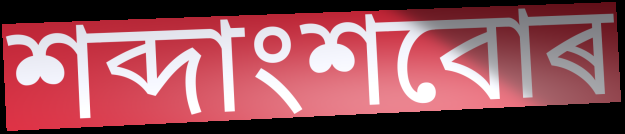
শব্দাংশবোৰ